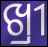
ଖ୍ରୀ